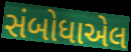
સંબોધાએલ